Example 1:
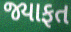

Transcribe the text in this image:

જ્યાફત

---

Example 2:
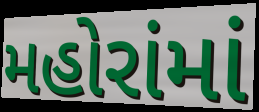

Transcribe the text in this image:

મહોરાંમાં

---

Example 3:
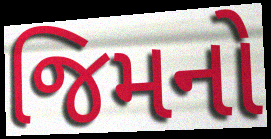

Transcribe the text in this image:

જિમનો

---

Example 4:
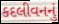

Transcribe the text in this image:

કદલીવનનું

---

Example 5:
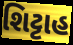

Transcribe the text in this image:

શિટ્ટાહ